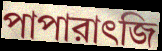
পাপারাৎজি